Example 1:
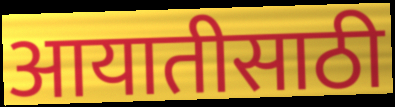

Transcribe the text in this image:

आयातीसाठी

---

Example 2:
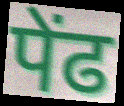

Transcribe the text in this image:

पेंढ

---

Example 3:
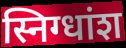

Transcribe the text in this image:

स्निग्धांश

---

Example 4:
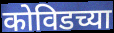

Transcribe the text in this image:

कोविडच्या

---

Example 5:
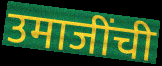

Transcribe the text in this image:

उमाजींची